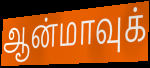
ஆன்மாவுக்